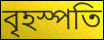
বৃহস্পতি